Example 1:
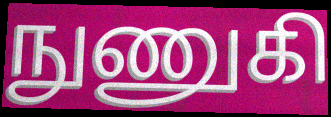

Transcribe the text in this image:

நுணுகி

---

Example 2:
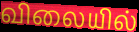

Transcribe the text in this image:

விலையில்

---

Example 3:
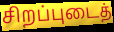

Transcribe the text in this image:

சிறப்புடைத்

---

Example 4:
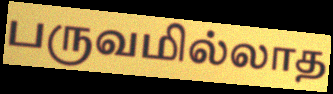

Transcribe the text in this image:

பருவமில்லாத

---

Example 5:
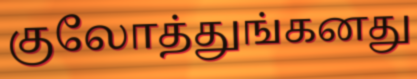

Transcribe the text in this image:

குலோத்துங்கனது